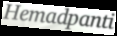
Hemadpanti